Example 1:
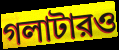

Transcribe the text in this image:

গলাটারও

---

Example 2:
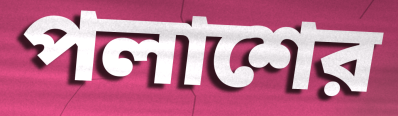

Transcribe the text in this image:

পলাশের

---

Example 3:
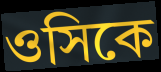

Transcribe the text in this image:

ওসিকে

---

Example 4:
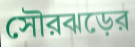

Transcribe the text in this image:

সৌরঝড়ের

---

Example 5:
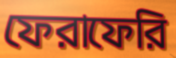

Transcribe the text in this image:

ফেরাফেরি